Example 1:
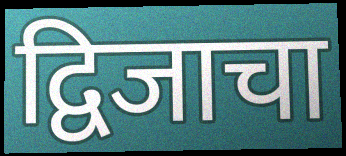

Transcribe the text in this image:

द्विजाचा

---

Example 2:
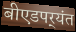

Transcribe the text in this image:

बीएडपर्यंत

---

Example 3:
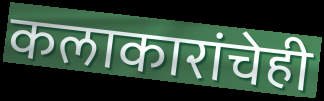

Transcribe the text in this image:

कलाकारांचेही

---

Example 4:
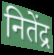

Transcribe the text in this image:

नितेंद्र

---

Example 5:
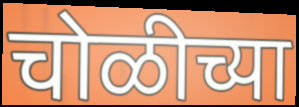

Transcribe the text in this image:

चोळीच्या